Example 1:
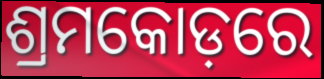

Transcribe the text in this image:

ଶ୍ରମକୋଡ଼ରେ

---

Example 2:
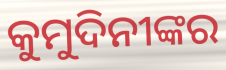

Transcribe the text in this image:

କୁମୁଦିନୀଙ୍କର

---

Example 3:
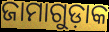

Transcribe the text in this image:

ଜାମାଗୁଡ଼ାକ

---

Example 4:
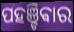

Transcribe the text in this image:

ପହଞ୍ଚିଵାର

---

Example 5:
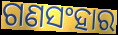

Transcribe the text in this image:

ଗଣସଂହାର